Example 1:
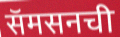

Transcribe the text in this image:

सॅमसनची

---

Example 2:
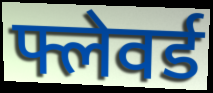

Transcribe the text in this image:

फ्लेवर्ड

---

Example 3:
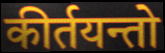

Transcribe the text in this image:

कीर्तयन्तो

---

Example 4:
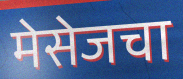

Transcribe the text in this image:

मेसेजचा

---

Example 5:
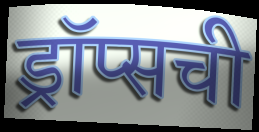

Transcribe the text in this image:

ड्रॉप्सची